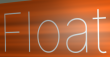
Float